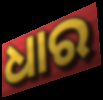
ଧାର